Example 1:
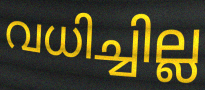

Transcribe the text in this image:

വധിച്ചില്ല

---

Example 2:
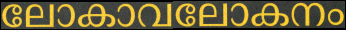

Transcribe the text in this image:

ലോകാവലോകനം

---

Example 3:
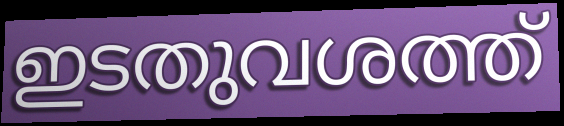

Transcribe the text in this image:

ഇടതുവശത്ത്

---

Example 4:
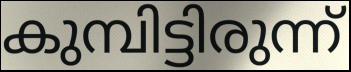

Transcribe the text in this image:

കുമ്പിട്ടിരുന്ന്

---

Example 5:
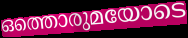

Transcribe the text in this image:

ഒത്തൊരുമയോടെ